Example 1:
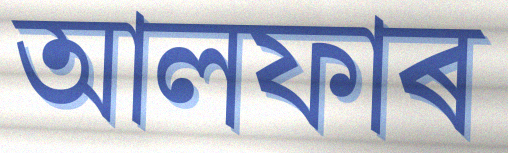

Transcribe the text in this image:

আলফাৰ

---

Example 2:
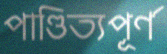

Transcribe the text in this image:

পাণ্ডিত্যপূৰ্ণ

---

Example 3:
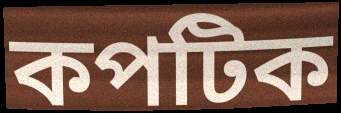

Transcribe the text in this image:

কপটিক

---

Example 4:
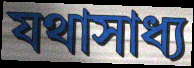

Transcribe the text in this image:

যথাসাধ্য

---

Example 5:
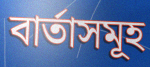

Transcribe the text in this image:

বাৰ্তাসমূহ